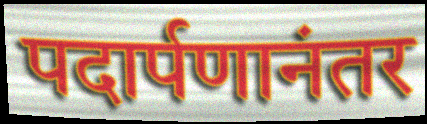
पदार्पणानंतर